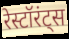
रेस्टॉरंट्स